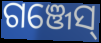
ଗଞ୍ଜେସ୍